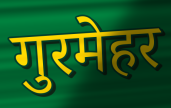
गुरमेहर